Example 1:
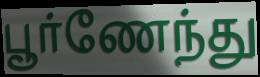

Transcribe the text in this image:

பூர்ணேந்து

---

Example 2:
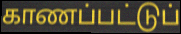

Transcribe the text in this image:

காணப்பட்டுப்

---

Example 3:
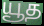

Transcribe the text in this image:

யூத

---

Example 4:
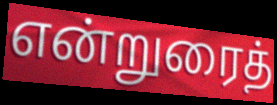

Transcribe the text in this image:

என்றுரைத்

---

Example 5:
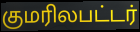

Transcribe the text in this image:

குமரிலபட்டர்